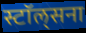
स्टॉल्सना